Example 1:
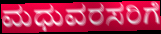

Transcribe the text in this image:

ಮಧುವರಸರಿಗೆ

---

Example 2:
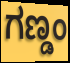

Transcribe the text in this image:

ಗಣ್ಡಂ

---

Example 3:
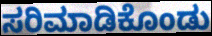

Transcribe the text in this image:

ಸರಿಮಾಡಿಕೊಂಡು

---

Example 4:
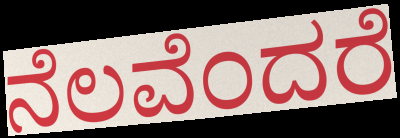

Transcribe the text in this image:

ನೆಲವೆಂದರೆ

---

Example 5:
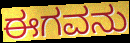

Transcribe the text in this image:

ಈಗವನು